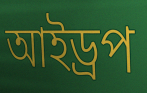
আইড্রপ